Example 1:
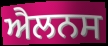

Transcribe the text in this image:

ਐਲਨਸ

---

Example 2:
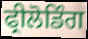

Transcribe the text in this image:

ਫ੍ਰੀਲੋਡਿੰਗ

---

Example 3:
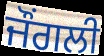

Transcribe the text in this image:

ਜੌਂਗਲੀ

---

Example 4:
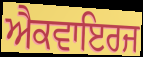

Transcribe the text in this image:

ਐਕਵਾਇਰਜ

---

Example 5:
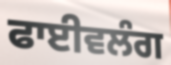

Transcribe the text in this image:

ਫਾਈਵਲੰਗ